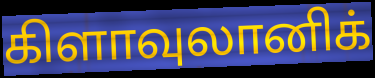
கிளாவுலானிக்